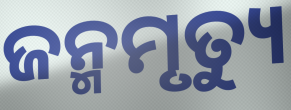
ଜନ୍ମମୃତ୍ୟୁ